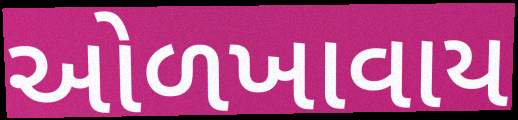
ઓળખાવાય